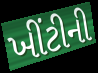
ખીંટીની